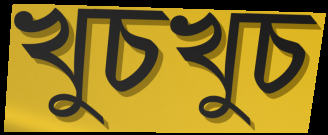
খুচখুচ